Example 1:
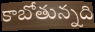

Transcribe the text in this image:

కాబోతున్నది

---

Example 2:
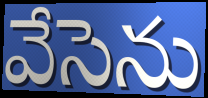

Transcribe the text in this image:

వేసెను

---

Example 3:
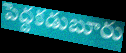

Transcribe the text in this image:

పెద్దకడుబూరు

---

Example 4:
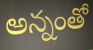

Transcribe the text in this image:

అన్నంతో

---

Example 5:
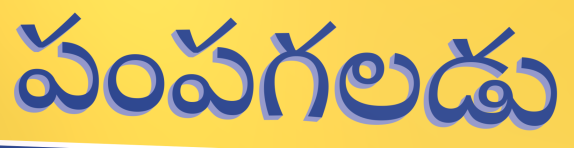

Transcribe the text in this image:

పంపగలడు